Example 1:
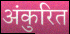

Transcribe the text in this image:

अंकुरित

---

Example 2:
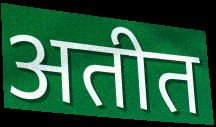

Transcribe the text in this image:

अतीत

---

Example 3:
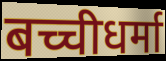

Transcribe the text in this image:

बच्चीधर्मा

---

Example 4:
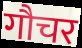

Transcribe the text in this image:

गौचर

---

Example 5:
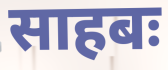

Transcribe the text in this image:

साहबः